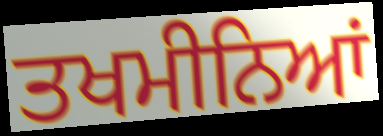
ਤਖਮੀਨਿਆਂ